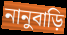
নানুবাড়ি